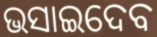
ଭସାଇଦେବ